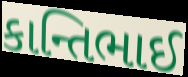
કાન્તિભાઈ